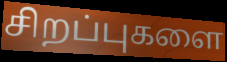
சிறப்புகளை